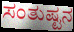
ಸಂತುಷ್ಟನ